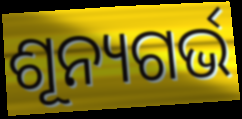
ଶୂନ୍ୟଗର୍ଭ